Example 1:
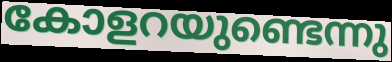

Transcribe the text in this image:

കോളറയുണ്ടെന്നു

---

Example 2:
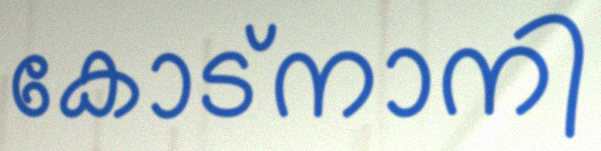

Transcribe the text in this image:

കോട്നാനി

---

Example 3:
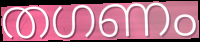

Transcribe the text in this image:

തഗണം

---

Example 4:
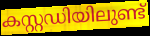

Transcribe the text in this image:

കസ്റ്റഡിയിലുണ്ട്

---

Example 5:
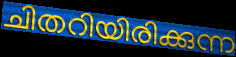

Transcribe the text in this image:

ചിതറിയിരിക്കുന്ന